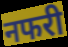
नफरी